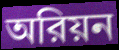
অরিয়ন